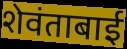
शेवंताबाई